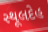
સ્થૂલદેહ